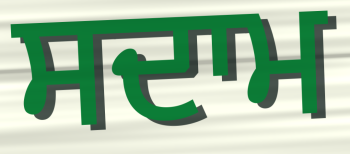
ਸਦਾਮ